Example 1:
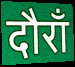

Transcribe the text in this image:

दौराँ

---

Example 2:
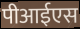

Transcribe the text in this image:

पीआईएस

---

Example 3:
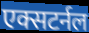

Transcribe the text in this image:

एक्सटर्नल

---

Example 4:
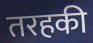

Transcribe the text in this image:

तरहकी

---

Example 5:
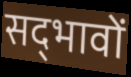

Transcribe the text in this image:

सद्भावों